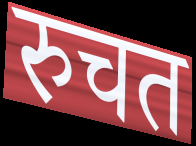
रुचत